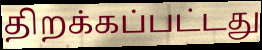
திறக்கப்பட்டது